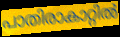
പാതിരാകാറ്റിൽ